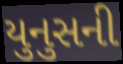
યુનુસની